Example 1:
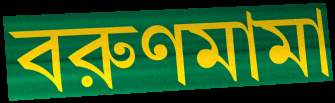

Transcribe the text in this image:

বরুণমামা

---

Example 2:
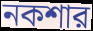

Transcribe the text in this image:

নকশার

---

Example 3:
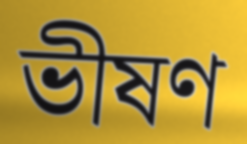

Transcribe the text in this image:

ভীষণ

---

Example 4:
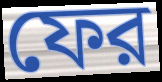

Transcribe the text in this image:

ফের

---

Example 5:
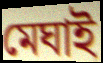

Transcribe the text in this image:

মেঘাই